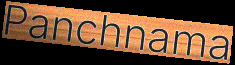
Panchnama